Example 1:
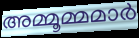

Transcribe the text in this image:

അമ്മൂമ്മമാർ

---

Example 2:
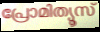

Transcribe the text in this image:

പ്രോമിത്യൂസ്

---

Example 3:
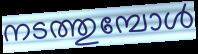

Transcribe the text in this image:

നടത്തുമ്പോൾ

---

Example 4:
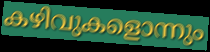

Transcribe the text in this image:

കഴിവുകളൊന്നും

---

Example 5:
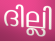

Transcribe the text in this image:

ദില്ലി